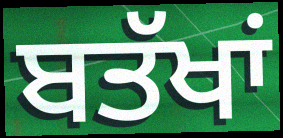
ਬਤੱਖਾਂ